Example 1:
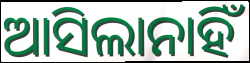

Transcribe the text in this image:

ଆସିଲାନାହିଁ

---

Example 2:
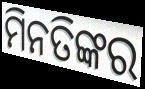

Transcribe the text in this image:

ମିନତିଙ୍କର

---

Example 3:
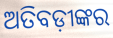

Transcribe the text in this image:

ଅତିବଡ଼ୀଙ୍କର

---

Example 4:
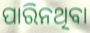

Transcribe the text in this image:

ପାରିନଥିବା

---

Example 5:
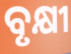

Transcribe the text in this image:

ବୃକ୍ଷୀ